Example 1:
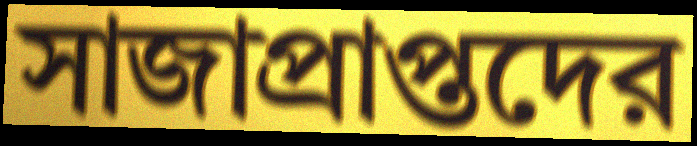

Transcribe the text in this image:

সাজাপ্রাপ্তদের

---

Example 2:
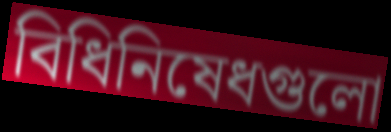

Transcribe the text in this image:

বিধিনিষেধগুলো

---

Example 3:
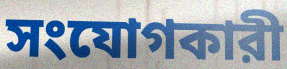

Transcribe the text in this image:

সংযোগকারী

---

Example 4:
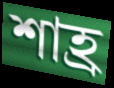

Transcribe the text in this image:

শাহ্র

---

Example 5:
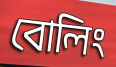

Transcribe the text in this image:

বোলিং